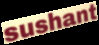
sushant